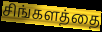
சிங்களத்தை